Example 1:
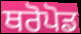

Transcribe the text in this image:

ਥਰੋਪੋਡ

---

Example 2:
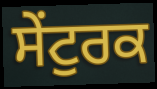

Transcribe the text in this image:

ਸੇਂਟੁਰਕ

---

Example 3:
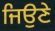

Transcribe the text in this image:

ਜਿਉਣੇ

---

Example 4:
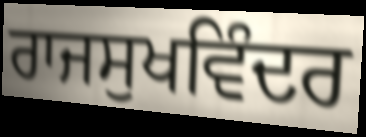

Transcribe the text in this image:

ਰਾਜਸੁਖਵਿੰਦਰ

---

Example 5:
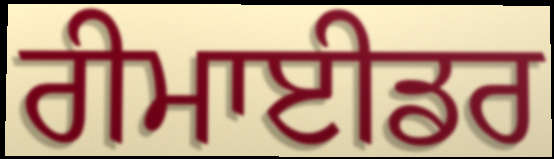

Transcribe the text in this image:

ਰੀਮਾਈਡਰ